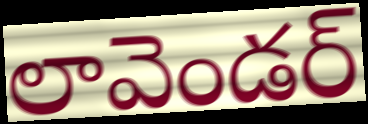
లావెండర్